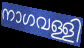
നാഗവള്ളി